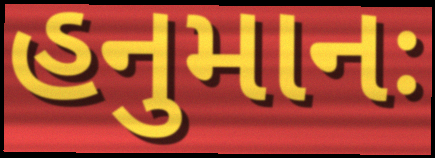
હનુમાનઃ